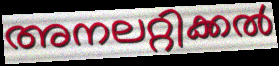
അനലറ്റിക്കൽ